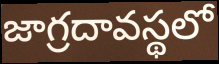
జాగ్రదావస్థలో